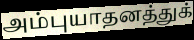
அம்புயாதனத்துக்